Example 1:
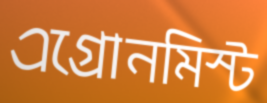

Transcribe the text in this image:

এগ্রোনমিস্ট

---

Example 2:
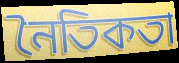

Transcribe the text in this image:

নৈতিকতা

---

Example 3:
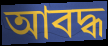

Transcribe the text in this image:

আবদ্ধ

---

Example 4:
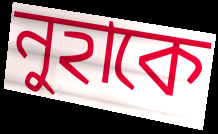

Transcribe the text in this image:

নুহাকে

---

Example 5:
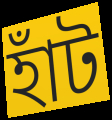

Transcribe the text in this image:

হাঁট